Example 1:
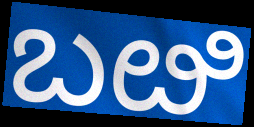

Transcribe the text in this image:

ಬೞಿ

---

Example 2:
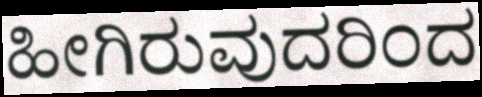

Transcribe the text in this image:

ಹೀಗಿರುವುದರಿಂದ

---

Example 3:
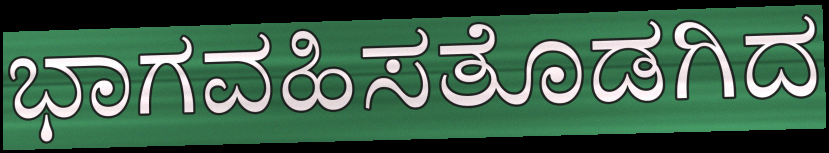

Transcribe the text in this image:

ಭಾಗವಹಿಸತೊಡಗಿದ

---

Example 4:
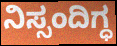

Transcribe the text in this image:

ನಿಸ್ಸಂದಿಗ್ಧ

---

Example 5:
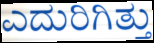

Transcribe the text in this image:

ಎದುರಿಗಿತ್ತು